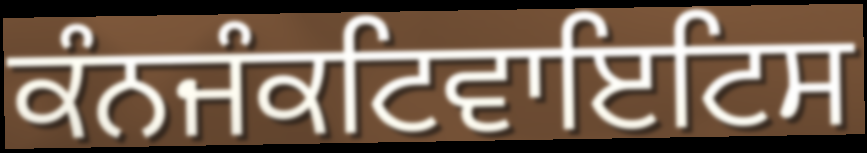
ਕੰਨਜੰਕਟਿਵਾਇਟਿਸ